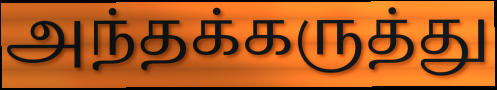
அந்தக்கருத்து